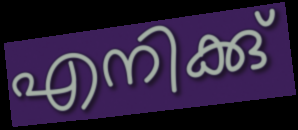
എനിക്കു്